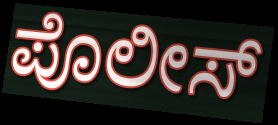
ಪೊಲೀಸ್